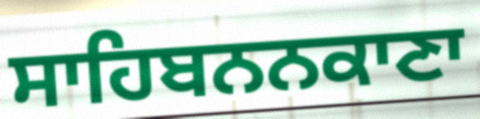
ਸਾਹਿਬਨਨਕਾਣਾ